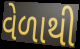
વેળાથી